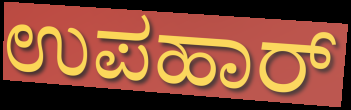
ಉಪಹಾರ್